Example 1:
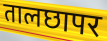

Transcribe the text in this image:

तालछापर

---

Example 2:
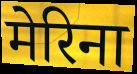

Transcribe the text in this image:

मेरिना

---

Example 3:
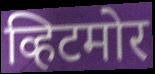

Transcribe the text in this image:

व्हिटमोर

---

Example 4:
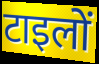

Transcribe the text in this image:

टाइलों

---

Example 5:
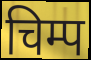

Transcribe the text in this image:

चिम्प